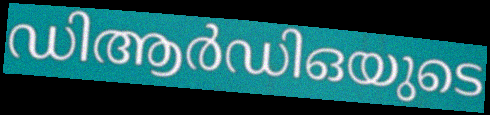
ഡിആർഡിഒയുടെ